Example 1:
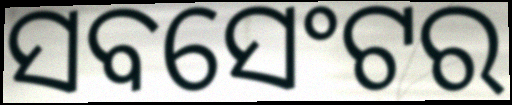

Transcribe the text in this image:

ସବସେଂଟର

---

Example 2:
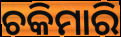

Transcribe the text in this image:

ଚକିମାରି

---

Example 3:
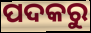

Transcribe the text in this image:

ପଦକରୁ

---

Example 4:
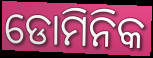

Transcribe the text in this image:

ଡୋମିନିକ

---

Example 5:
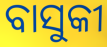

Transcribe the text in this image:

ବାସୁକୀ